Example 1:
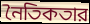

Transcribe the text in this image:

নৈতিকতার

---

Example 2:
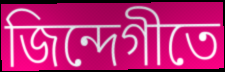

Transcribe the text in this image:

জিন্দেগীতে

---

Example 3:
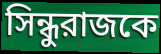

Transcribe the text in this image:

সিন্ধুরাজকে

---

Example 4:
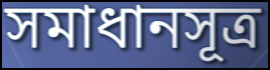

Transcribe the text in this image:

সমাধানসূত্র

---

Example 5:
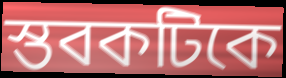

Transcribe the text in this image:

স্তবকটিকে